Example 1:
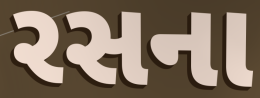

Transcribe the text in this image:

રસના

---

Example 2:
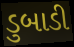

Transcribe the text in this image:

ડુબાડી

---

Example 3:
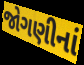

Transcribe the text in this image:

જોગણીનાં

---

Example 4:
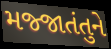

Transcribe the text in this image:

મજ્જાતંતુને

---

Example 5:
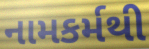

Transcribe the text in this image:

નામકર્મથી